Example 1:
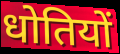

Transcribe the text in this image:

धोतियों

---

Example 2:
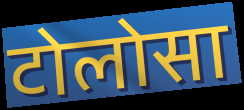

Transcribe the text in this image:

टोलोसा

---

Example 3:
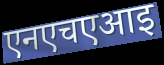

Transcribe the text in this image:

एनएचएआइ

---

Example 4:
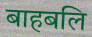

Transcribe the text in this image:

बाहबलि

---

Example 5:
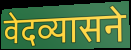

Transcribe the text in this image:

वेदव्यासने